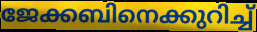
ജേക്കബിനെക്കുറിച്ച്